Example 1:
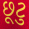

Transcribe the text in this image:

છૂટુ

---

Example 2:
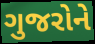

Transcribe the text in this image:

ગુજરોને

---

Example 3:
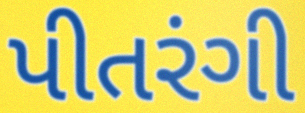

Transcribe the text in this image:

પીતરંગી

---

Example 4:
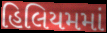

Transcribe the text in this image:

હિલિયમમાં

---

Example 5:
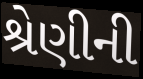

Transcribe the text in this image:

શ્રેણીની